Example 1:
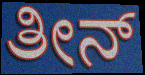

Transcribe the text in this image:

ತೀನ್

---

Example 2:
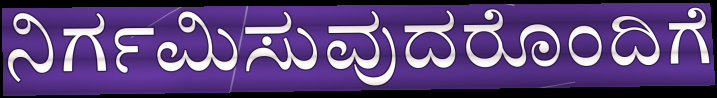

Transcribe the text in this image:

ನಿರ್ಗಮಿಸುವುದರೊಂದಿಗೆ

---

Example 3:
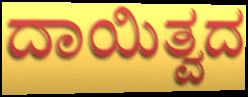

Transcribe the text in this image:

ದಾಯಿತ್ವದ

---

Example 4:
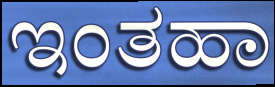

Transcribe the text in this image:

ಇಂತಹಾ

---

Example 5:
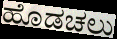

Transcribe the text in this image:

ಹೊಡಚಲು